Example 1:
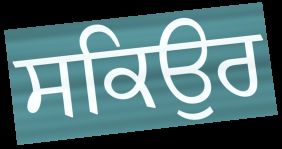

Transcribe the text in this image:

ਸਕਿਉਰ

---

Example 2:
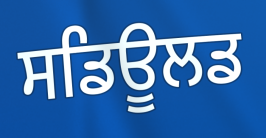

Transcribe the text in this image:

ਸਡਿਊਲਡ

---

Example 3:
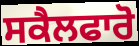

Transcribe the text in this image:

ਸਕੈਲਫਾਰੋ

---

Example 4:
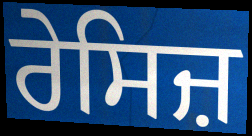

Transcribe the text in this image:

ਰੇਸਿਜ਼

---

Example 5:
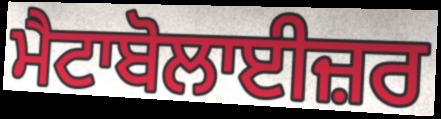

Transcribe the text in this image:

ਮੈਟਾਬੋਲਾਈਜ਼ਰ